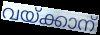
വയ്ക്കാന്